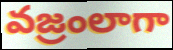
వజ్రంలాగా